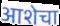
आशेचा